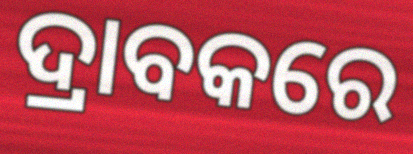
ଦ୍ରାବକରେ